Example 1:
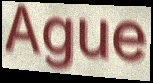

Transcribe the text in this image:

Ague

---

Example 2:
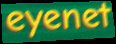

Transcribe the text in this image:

eyenet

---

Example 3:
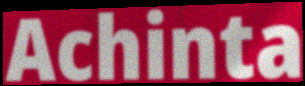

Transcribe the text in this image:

Achinta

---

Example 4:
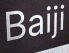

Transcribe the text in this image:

Baiji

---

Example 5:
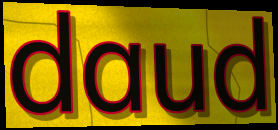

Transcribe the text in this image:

daud